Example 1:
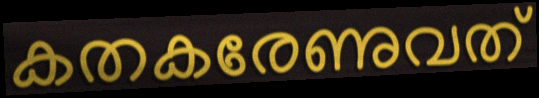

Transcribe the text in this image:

കതകരേണുവത്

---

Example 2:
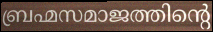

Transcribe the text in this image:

ബ്രഹ്മസമാജത്തിന്റെ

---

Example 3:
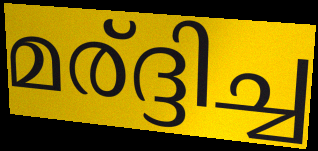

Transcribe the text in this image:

മര്ദ്ദിച്ച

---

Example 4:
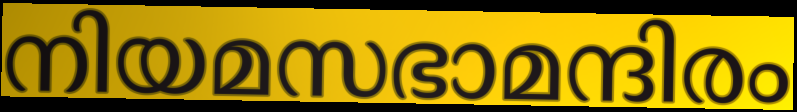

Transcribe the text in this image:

നിയമസഭാമന്ദിരം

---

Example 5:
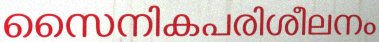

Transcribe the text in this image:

സൈനികപരിശീലനം